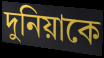
দুনিয়াকে